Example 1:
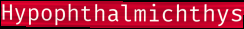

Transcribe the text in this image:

Hypophthalmichthys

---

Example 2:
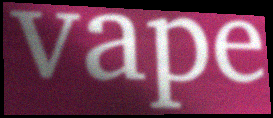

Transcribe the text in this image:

vape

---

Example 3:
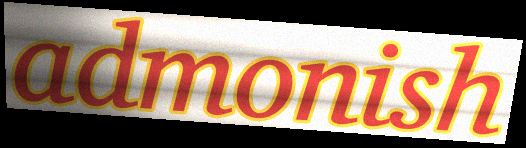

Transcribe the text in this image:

admonish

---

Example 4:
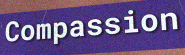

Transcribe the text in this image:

Compassion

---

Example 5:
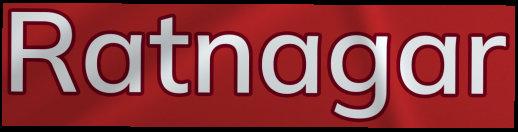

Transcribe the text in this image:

Ratnagar